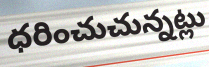
ధరించుచున్నట్లు